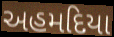
અહમદિયા